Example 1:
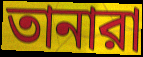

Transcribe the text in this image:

তানারা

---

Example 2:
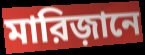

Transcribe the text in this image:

মারিজ়ানে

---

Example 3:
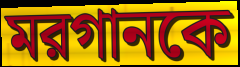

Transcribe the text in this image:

মরগানকে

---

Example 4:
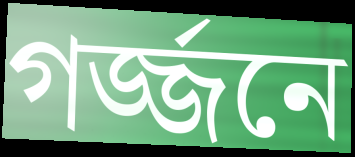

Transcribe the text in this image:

গর্জ্জনে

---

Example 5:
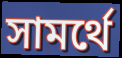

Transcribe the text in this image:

সামর্থে